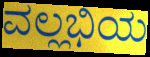
ವಲ್ಲಭಿಯ